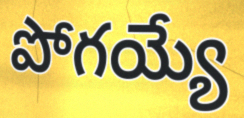
పోగయ్యే